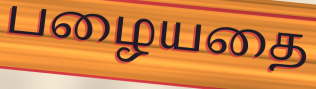
பழையதை